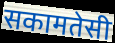
सकामतेसी